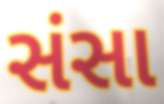
સંસા